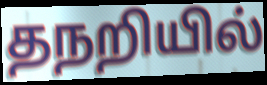
தநறியில்